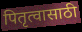
पितृत्वासाठी